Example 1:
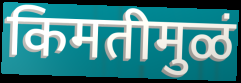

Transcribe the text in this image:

किमतीमुळं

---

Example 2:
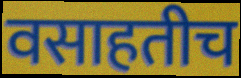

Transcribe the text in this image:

वसाहतीच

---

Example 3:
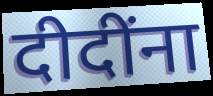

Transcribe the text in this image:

दीदींना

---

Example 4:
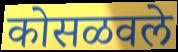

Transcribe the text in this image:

कोसळवले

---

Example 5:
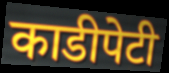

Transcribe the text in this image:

काडीपेटी